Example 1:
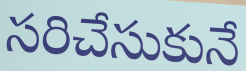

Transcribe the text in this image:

సరిచేసుకునే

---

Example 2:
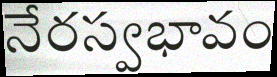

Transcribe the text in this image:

నేరస్వభావం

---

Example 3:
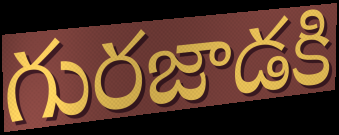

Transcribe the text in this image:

గురజాడకి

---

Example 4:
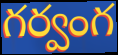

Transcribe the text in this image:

గర్వంగ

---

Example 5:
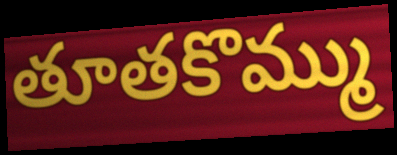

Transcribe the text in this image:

తూతకొమ్ము